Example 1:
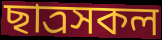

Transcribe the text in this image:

ছাত্ৰসকল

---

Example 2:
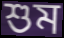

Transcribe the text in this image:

শুম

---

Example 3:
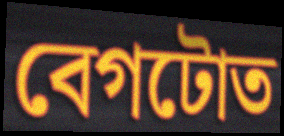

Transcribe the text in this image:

বেগটোত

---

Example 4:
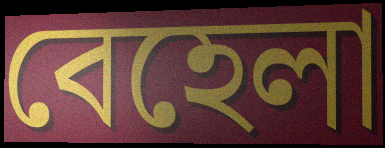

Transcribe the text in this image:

বেহেলা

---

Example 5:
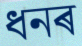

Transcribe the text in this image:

ধনৰ